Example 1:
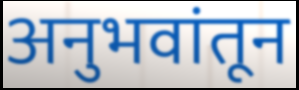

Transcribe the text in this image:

अनुभवांतून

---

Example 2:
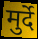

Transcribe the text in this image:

मुर्दे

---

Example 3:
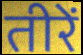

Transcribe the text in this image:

तीरें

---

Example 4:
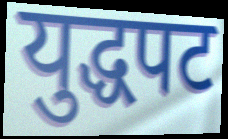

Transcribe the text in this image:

युद्धपट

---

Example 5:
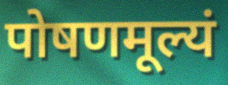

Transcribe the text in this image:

पोषणमूल्यं